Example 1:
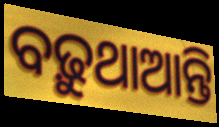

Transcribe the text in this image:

ବଢ଼ୁଥାଆନ୍ତି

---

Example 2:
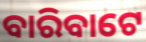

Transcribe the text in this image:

ବାରିବାଟେ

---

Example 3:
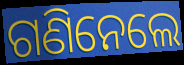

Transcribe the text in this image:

ଗଣିନେଲେ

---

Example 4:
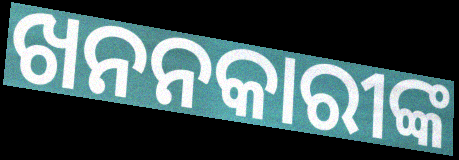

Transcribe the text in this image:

ଖନନକାରୀଙ୍କ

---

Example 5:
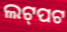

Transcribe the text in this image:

ଲଟ୍‌ପଟ